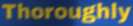
Thoroughly